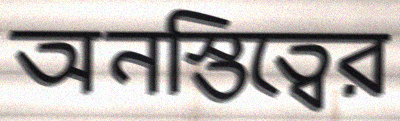
অনস্তিত্বের